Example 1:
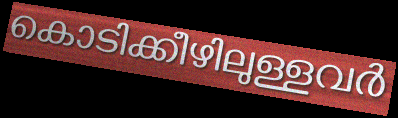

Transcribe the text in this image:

കൊടിക്കീഴിലുള്ളവർ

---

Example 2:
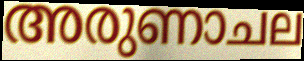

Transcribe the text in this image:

അരുണാചല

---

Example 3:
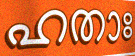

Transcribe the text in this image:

ഹതാഃ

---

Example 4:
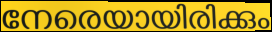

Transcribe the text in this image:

നേരെയായിരിക്കും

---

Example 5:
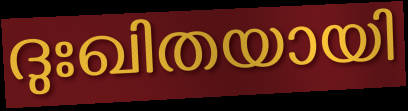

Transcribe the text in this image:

ദുഃഖിതയായി